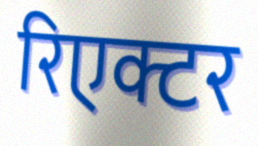
रिएक्टर